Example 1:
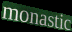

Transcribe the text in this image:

monastic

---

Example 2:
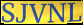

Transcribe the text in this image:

SJVNL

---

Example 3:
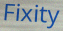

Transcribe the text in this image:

Fixity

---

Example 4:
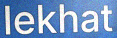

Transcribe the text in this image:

lekhat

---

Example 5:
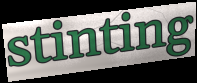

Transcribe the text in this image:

stinting